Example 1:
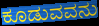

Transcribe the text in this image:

ಕೂಡುವವನು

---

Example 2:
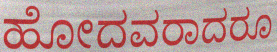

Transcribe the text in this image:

ಹೋದವರಾದರೂ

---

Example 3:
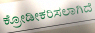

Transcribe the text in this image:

ಕ್ರೋಡೀಕರಿಸಲಾಗಿದೆ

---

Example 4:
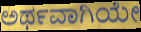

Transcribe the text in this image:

ಅರ್ಥವಾಗಿಯೇ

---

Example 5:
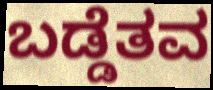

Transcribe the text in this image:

ಬಡ್ಡೆತವ